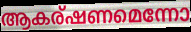
ആകര്ഷണമെന്നോ